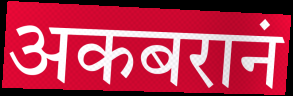
अकबरानं